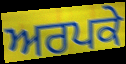
ਅਰਪਕੇ